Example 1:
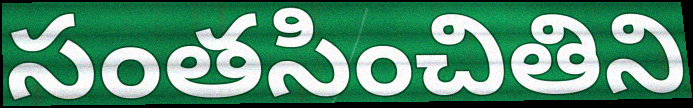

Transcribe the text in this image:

సంతసించితిని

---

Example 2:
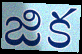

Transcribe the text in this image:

జిక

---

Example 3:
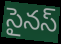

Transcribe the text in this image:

సైనస్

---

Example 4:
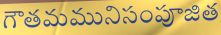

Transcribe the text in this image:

గౌతమమునిసంపూజిత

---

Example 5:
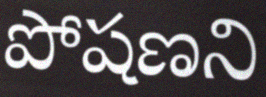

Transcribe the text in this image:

పోషణని